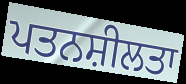
ਪਤਨਸ਼ੀਲਤਾ